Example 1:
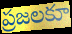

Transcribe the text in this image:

ప్రజలకూ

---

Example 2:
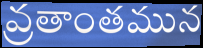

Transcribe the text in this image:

వ్రతాంతమున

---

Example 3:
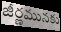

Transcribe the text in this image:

జీర్ణమునకు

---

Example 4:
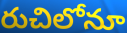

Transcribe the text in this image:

రుచిలోనూ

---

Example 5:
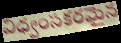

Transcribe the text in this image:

విధ్వంసకరమైన